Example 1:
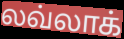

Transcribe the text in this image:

லவ்லாக்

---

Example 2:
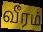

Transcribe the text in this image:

வீரம்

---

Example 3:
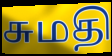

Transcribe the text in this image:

சுமதி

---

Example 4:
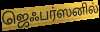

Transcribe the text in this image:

ஜெஃபர்ஸனில்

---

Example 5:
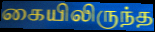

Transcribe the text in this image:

கையிலிருந்த